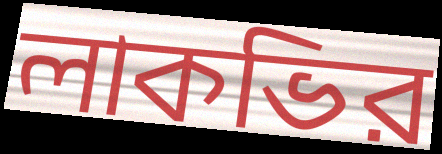
লাকভির